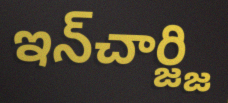
ఇన్‌చార్జ్జి